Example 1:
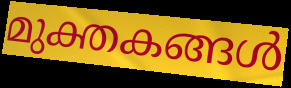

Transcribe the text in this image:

മുക്തകങ്ങൾ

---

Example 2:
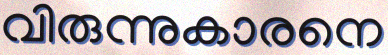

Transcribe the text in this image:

വിരുന്നുകാരനെ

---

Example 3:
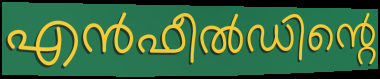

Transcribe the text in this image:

എൻഫീൽഡിന്റെ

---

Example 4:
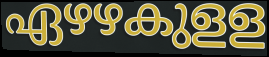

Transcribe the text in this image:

ഏഴഴകുളള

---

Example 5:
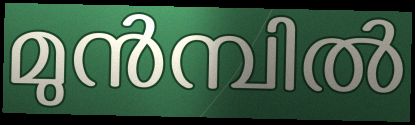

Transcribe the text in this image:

മുൻമ്പിൽ